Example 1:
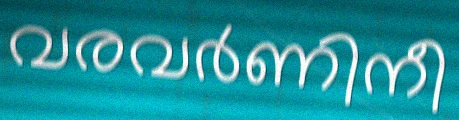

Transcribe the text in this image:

വരവർണിനീ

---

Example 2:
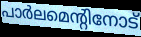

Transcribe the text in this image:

പാർലമെന്റിനോട്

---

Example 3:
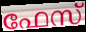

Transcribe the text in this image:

ഫേസ്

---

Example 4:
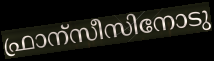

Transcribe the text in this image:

ഫ്രാന്സീസിനോടു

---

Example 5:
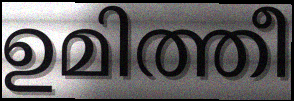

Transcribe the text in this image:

ഉമിത്തീ